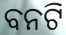
ବନଟି